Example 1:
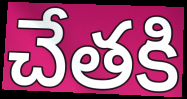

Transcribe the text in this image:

చేతకి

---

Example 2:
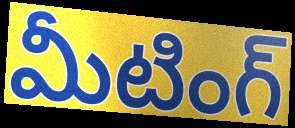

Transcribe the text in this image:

మీటింగ్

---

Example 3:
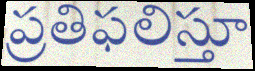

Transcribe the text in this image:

ప్రతిఫలిస్తూ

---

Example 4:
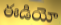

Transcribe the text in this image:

ఈడియో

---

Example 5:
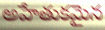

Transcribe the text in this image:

అహేతుకమైన